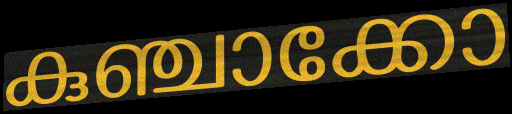
കുഞ്ചാക്കോ